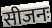
सीजनः